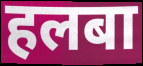
हलबा